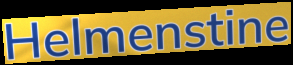
Helmenstine